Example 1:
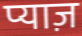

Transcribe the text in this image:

प्याज़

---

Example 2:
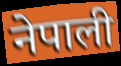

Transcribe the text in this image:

नेपाली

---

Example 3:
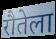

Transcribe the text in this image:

रौतेला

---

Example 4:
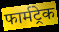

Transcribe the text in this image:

फार्मट्रेक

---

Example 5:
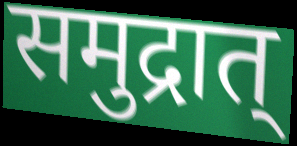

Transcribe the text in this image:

समुद्रात्